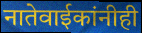
नातेवाईकांनीही